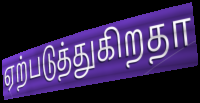
ஏற்படுத்துகிறதா